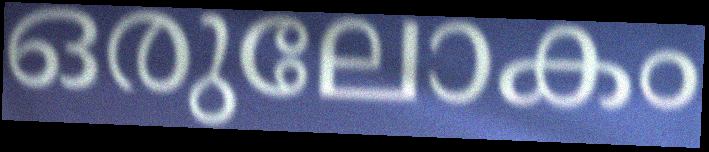
ഒരുലോകം